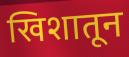
खिशातून